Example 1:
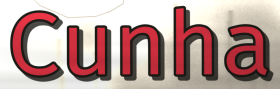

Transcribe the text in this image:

Cunha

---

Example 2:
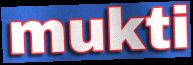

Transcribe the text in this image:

mukti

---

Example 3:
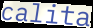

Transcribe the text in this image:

calita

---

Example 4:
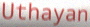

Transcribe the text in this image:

Uthayan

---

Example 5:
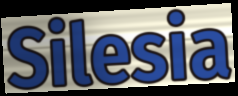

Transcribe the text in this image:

Silesia